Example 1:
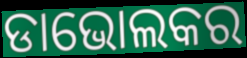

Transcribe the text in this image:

ଡାଭୋଲକର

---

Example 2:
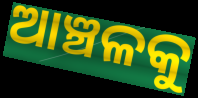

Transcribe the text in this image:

ଆଞ୍ଚଳକୁ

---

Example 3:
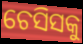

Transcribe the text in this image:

ଚେସିସକୁ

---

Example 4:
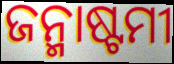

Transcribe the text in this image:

ଜନ୍ମାଷ୍ଟମୀ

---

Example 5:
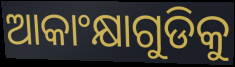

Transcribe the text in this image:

ଆକାଂକ୍ଷାଗୁଡିକୁ